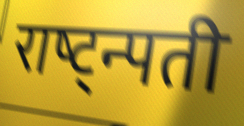
राष्ट्न्पती